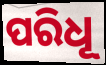
ପରିଧୂ